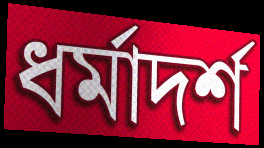
ধর্মাদর্শ